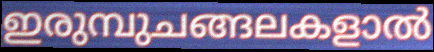
ഇരുമ്പുചങ്ങലകളാൽ